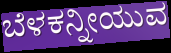
ಬೆಳಕನ್ನೀಯುವ